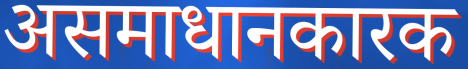
असमाधानकारक